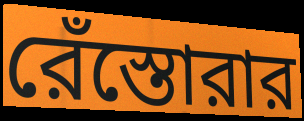
রেঁস্তোরার